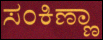
ಸಂಕಿಣ್ಣಾ